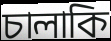
চালাকি